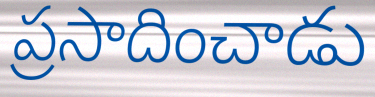
ప్రసాదించాడు